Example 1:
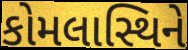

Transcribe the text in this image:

કોમલાસ્થિને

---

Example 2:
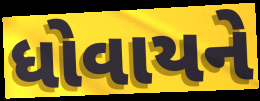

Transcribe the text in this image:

ધોવાયને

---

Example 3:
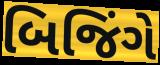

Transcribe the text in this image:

બિજિંગે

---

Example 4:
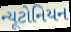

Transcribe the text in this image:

ન્યૂટોનિયન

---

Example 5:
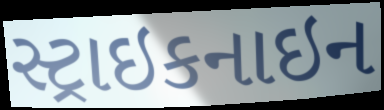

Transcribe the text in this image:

સ્ટ્રાઇકનાઇન